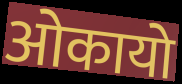
ओकायो